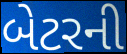
બેટરની